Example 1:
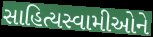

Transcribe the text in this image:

સાહિત્યસ્વામીઓને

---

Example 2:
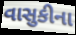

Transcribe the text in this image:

વાસુકીના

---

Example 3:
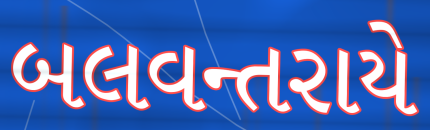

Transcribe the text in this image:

બલવન્તરાયે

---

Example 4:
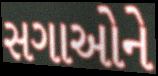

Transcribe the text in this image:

સગાઓને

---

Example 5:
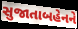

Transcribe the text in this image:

સુજાતાબહેનને